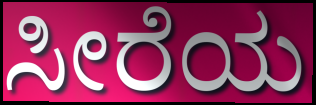
ಸೀರೆಯ